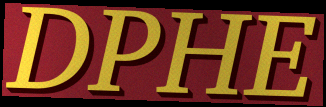
DPHE